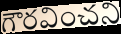
గౌరవించని